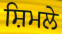
ਸ਼ਿਮਲੇ